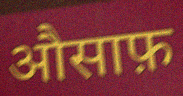
औसाफ़